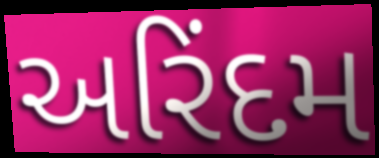
અરિંદમ